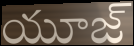
యూజ్